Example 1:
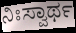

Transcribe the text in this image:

ನಿಃಸ್ವಾರ್ಥ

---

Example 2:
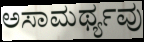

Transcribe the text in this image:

ಅಸಾಮರ್ಥ್ಯವು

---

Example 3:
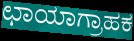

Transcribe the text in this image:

ಛಾಯಾಗ್ರಾಹಕ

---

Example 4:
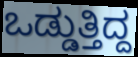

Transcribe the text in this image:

ಒಡ್ಡುತ್ತಿದ್ದ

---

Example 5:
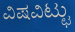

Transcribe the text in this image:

ವಿಷವಿಟ್ಟು